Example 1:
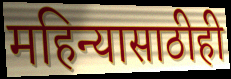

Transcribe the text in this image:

महिन्यासाठीही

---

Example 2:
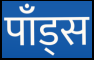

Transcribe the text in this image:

पाँड्स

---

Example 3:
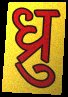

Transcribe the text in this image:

ध्रु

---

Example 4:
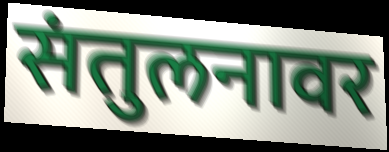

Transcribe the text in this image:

संतुलनावर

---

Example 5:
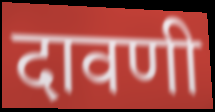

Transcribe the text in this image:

दावणी